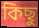
কিছু